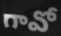
గావో